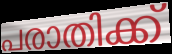
പരാതിക്ക്